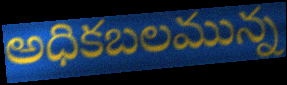
అధికబలమున్న